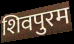
शिवपुरम